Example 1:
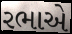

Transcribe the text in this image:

રભાએ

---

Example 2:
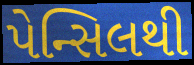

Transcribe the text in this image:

પેન્સિલથી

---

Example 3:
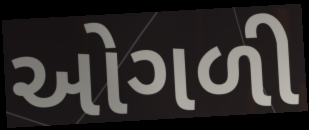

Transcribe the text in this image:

ઓગળી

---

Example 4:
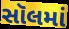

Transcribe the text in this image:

સૉલમાં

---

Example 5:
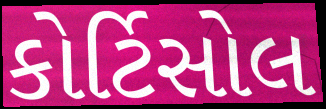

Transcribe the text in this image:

કોર્ટિસોલ